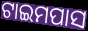
ଟାଇମପାସ